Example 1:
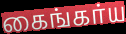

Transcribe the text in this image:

கைங்கர்ய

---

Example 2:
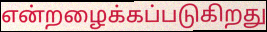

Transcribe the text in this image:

என்றழைக்கப்படுகிறது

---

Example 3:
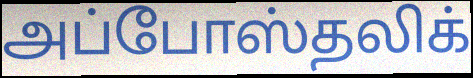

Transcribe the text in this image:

அப்போஸ்தலிக்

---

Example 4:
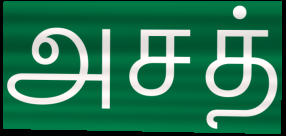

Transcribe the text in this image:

அசத்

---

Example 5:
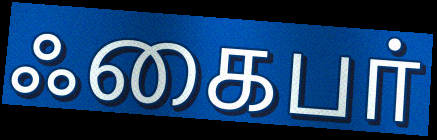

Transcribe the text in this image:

ஃகைபர்